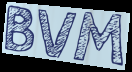
BVM